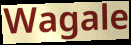
Wagale